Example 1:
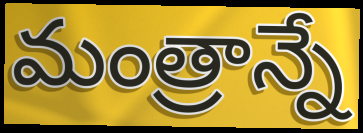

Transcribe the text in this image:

మంత్రాన్నే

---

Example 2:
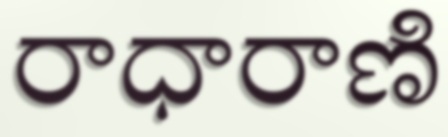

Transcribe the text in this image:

రాధారాణి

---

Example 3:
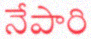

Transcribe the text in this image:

నేపారి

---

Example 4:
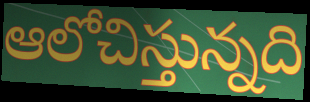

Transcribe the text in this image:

ఆలోచిస్తున్నది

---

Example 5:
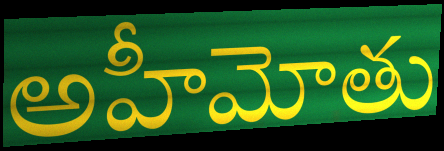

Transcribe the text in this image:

అహీమోతు